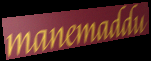
manemaddu